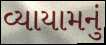
વ્યાયામનું